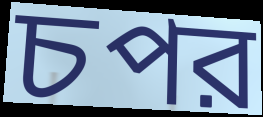
চপর